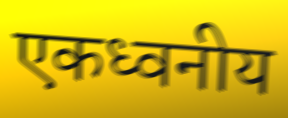
एकध्वनीय